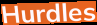
Hurdles